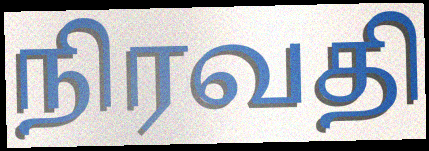
நிரவதி